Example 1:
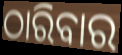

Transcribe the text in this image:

ଠାରିବାର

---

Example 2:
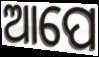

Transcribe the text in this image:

ଆପେ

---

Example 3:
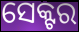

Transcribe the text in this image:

ସେକ୍ଟର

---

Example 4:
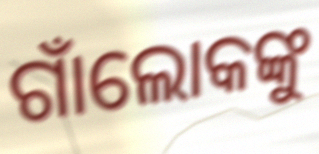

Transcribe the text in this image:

ଗାଁଲୋକଙ୍କୁ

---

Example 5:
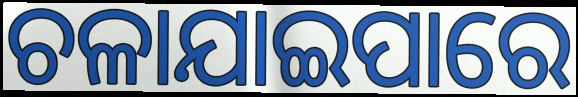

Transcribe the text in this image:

ଚଳାଯାଇପାରେ